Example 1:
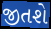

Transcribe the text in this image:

જીતશે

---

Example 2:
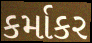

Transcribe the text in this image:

કર્માકર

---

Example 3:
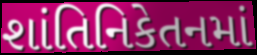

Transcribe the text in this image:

શાંતિનિકેતનમાં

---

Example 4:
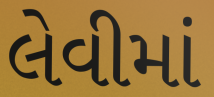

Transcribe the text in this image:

લેવીમાં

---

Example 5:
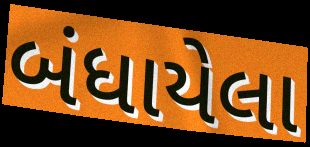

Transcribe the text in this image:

બંધાયેલા